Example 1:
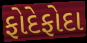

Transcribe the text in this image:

ફોદેફોદા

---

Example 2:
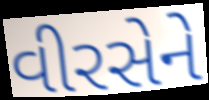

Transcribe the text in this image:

વીરસેને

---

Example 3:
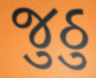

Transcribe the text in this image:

જુઠુ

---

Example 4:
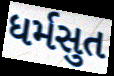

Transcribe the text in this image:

ધર્મસુત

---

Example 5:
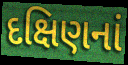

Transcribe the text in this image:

દક્ષિણનાં